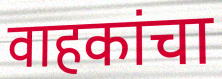
वाहकांचा